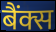
बैंक्‍स